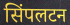
सिंपलटन